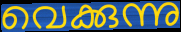
വെക്കുന്നു